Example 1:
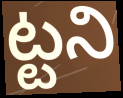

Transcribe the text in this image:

ట్టని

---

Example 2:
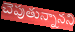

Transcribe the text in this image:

చెపుతున్నానని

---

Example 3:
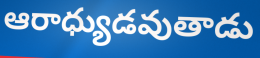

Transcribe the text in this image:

ఆరాధ్యుడవుతాడు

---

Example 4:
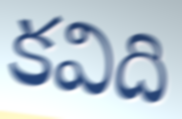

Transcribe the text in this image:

కవిది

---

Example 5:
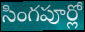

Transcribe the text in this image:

సింగపూర్లో